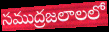
సముద్రజలాలలో